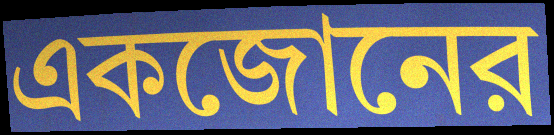
একজোনের